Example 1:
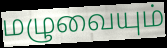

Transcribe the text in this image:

மழுவையும்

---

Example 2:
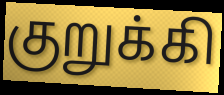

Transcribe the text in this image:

குறுக்கி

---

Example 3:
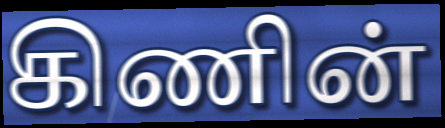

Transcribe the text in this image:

கிணின்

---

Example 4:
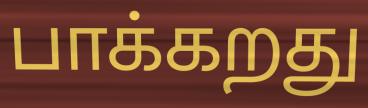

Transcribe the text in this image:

பாக்கறது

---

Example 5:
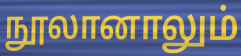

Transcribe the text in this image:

நூலானாலும்